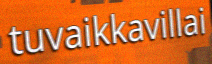
tuvaikkavillai